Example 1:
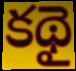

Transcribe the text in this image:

కథై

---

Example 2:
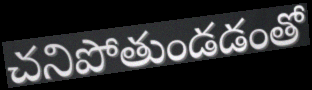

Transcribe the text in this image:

చనిపోతుండడంతో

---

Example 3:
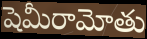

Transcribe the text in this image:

షెమీరామోతు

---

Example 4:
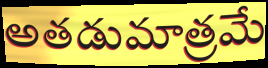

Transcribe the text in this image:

అతడుమాత్రమే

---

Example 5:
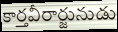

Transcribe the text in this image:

కార్తవీరార్జునుడు